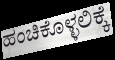
ಹಂಚಿಕೊಳ್ಳಲಿಕ್ಕೆ